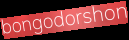
bongodorshon